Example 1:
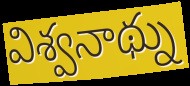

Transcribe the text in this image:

విశ్వనాథ్ను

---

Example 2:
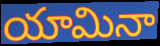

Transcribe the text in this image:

యామినా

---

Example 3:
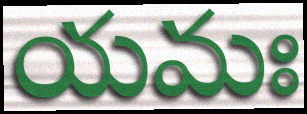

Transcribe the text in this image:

యమః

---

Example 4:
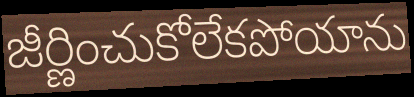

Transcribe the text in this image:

జీర్ణించుకోలేకపోయాను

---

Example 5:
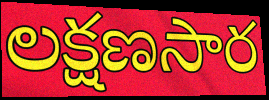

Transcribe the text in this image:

లక్షణసార